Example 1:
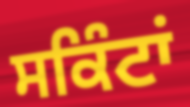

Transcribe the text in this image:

ਸਕਿੰਟਾਂ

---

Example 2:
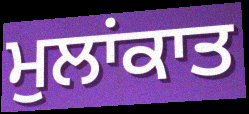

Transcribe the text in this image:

ਮੁਲਾਂਕਾਤ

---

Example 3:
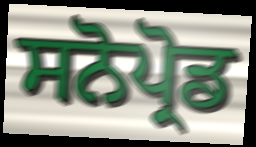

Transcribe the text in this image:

ਸਨੋਪ੍ਰੋਡ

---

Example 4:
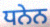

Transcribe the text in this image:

ਧਨੇਨ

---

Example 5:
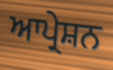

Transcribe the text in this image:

ਆਪ੍ਰੇਸ਼ਨ